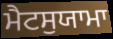
ਮੈਟਸੁਯਾਮਾ